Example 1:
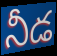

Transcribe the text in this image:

నీడ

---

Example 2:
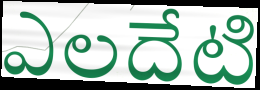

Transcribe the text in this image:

ఎలదేటి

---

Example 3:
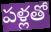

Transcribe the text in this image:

పళ్లతో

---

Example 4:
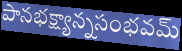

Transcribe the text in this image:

పానభక్ష్యాన్నసంభవమ్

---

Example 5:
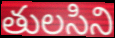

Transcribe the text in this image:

తులసిని